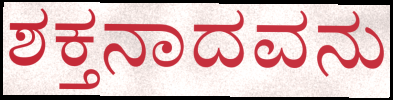
ಶಕ್ತನಾದವನು